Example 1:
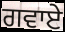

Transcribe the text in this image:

ਗਵਾਏ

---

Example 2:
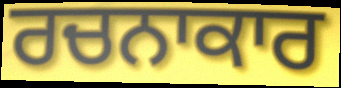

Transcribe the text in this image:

ਰਚਨਾਕਾਰ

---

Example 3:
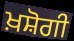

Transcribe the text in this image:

ਖ਼ਸ਼ੋਗੀ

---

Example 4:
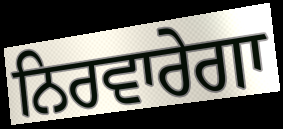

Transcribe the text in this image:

ਨਿਰਵਾਰੇਗਾ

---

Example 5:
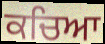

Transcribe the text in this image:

ਕਚਿਆ